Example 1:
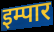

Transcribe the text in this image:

इम्पार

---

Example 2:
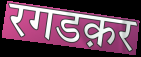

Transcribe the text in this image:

रगडक़र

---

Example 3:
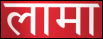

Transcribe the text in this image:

लामा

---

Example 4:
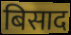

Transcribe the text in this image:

बिसाद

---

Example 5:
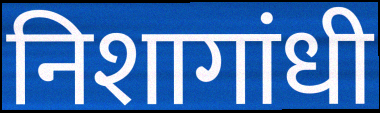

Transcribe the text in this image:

निशागांधी